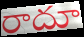
రాదూ